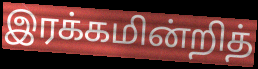
இரக்கமின்றித்